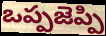
ఒప్పజెప్పి